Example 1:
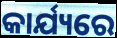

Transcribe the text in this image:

କାର୍ଯ୍ୟରେ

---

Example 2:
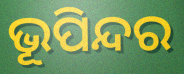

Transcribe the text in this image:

ଭୂପିନ୍ଦର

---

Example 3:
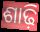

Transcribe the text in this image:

ଶାଢ଼ି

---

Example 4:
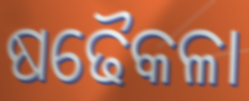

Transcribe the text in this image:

ଷଢୈକଳା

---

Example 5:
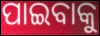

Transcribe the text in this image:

ପାଇବାକୁ